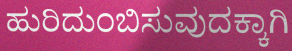
ಹುರಿದುಂಬಿಸುವುದಕ್ಕಾಗಿ